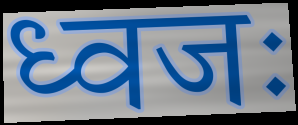
ध्वजः